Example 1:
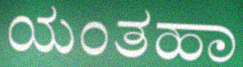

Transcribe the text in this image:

ಯಂತಹಾ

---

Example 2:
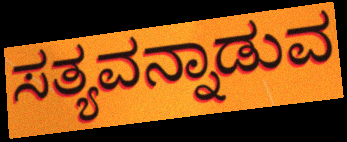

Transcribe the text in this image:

ಸತ್ಯವನ್ನಾಡುವ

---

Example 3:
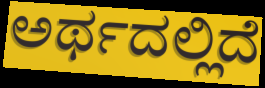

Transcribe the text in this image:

ಅರ್ಥದಲ್ಲಿದೆ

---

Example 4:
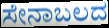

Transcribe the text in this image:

ಸೇನಾಬಲದ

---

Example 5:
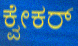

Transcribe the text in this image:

ಕ್ವೇಕರ್